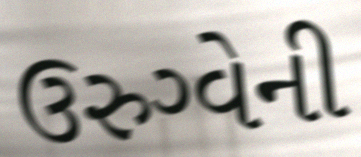
ઉરુગ્વેની